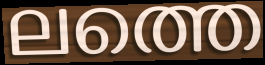
ലത്തെ